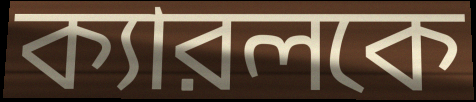
ক্যারলকে